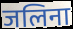
जलिना